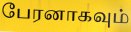
பேரனாகவும்